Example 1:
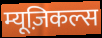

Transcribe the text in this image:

म्यूज़िकल्स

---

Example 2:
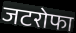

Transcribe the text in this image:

जटरोफा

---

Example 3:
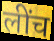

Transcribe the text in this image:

लींच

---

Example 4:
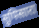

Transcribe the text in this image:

सुपिसारा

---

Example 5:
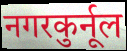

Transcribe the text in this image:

नगरकुर्नूल